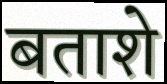
बताशे